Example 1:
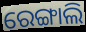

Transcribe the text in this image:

ରେଙ୍ଗାଲି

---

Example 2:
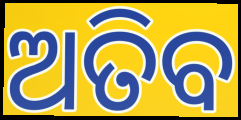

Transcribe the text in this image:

ଅତିବ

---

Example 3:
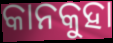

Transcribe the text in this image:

କାନକୁହା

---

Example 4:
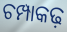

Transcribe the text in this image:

ଚମ୍ପାକଢ଼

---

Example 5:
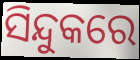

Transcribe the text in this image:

ସିନ୍ଦୁକରେ